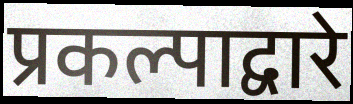
प्रकल्पाद्वारे